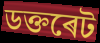
ডক্তৰেট